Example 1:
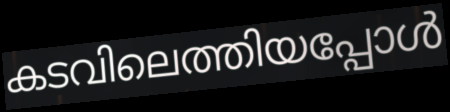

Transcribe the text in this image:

കടവിലെത്തിയപ്പോൾ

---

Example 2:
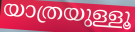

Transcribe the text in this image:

യാത്രയുള്ളൂ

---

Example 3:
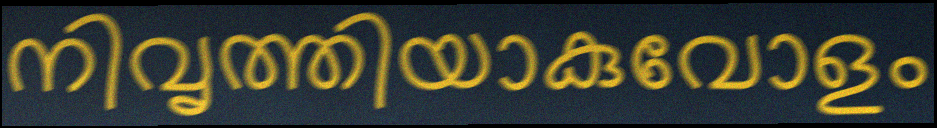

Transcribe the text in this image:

നിവൃത്തിയാകുവോളം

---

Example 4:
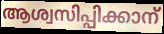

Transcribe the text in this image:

ആശ്വസിപ്പിക്കാന്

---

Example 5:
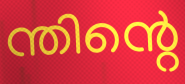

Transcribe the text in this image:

ന്തിന്റെ